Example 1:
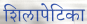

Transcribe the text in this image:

शिलापेटिका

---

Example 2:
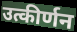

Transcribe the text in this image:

उत्कीर्णन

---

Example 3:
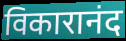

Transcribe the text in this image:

विकारानंद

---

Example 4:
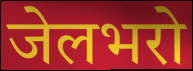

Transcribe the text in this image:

जेलभरो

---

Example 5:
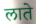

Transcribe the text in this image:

लाते